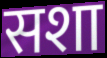
सशा